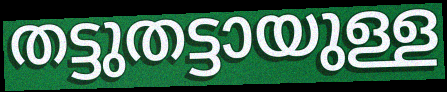
തട്ടുതട്ടായുള്ള